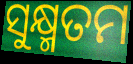
ସୁକ୍ଷ୍ମତମ